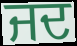
ਜਦ